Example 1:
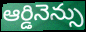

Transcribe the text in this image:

ఆర్డినెన్సు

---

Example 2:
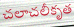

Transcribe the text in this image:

చలాచలీకృత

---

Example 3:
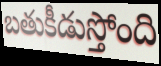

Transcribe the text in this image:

బతుకీడుస్తోంది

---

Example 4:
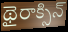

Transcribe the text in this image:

థైరాక్సిన్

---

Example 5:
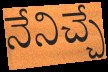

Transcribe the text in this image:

నేనిచ్చే